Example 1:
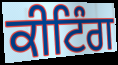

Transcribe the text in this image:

ਕੀਟਿੰਗ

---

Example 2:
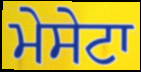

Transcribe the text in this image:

ਮੇਸੇਟਾ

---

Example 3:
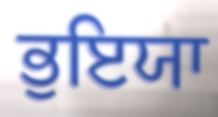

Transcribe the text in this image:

ਭੁਇਯਾ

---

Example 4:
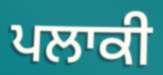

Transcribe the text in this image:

ਪਲਾਕੀ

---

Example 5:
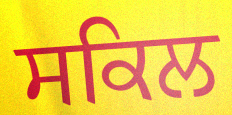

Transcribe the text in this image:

ਸਕਿਲ